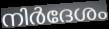
നിർദേശം